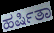
ಹರ್ಷಿತಾ